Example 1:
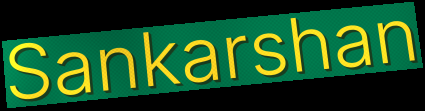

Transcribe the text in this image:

Sankarshan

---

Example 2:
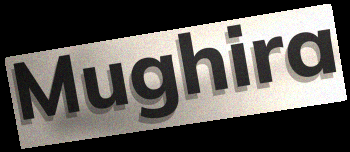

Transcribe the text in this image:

Mughira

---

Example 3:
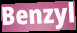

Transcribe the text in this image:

Benzyl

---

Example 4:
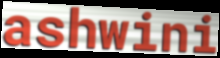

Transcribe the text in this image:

ashwini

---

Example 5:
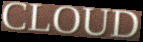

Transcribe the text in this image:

CLOUD